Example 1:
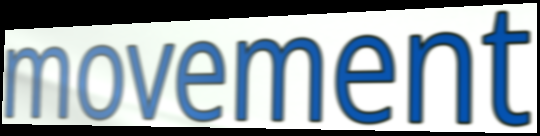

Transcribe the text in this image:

movement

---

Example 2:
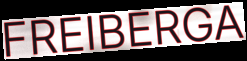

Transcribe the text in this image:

FREIBERGA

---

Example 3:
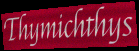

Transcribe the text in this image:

Thymichthys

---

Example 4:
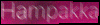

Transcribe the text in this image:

Hampakka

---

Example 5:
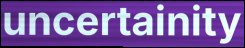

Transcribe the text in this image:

uncertainity